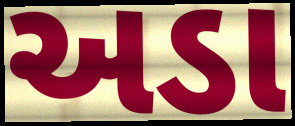
અડા